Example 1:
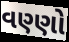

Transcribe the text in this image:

વણ્ણો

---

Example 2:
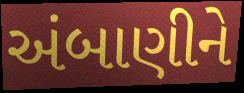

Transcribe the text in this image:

અંબાણીને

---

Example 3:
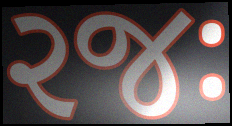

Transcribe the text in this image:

રજઃ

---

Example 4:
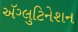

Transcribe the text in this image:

ઍગ્લુટિનેશન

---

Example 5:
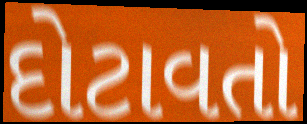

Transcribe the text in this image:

દોટાવતો